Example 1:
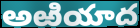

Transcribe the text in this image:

అఱియాద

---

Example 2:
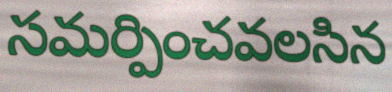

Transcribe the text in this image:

సమర్పించవలసిన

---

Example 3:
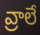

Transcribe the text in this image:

వ్రాలే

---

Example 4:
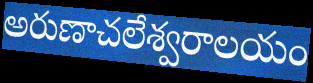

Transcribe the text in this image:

అరుణాచలేశ్వరాలయం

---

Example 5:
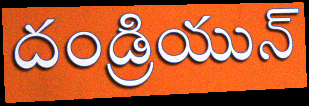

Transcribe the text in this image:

దండ్రియున్